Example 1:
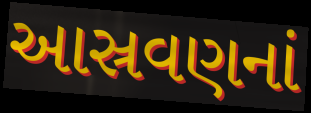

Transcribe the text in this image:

આસ્રવણનાં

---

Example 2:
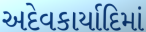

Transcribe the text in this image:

અદેવકાર્યાદિમાં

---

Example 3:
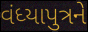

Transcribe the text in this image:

વંધ્યાપુત્રને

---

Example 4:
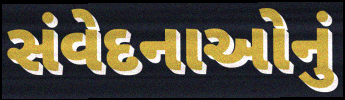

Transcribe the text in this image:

સંવેદનાઓનું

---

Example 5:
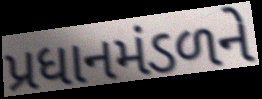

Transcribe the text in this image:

પ્રધાનમંડળને